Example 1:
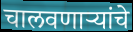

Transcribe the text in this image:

चालवणाऱ्यांचे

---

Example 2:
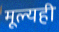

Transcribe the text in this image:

मूल्यही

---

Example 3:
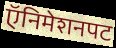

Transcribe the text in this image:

ऍनिमेशनपट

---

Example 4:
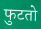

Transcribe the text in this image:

फुटतो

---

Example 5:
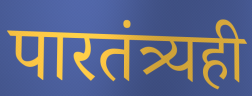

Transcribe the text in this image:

पारतंत्र्यही